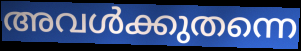
അവൾക്കുതന്നെ